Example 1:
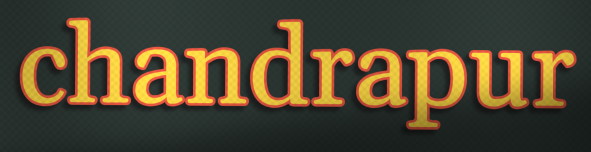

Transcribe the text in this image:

chandrapur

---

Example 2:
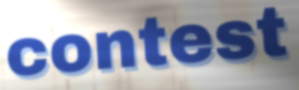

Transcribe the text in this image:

contest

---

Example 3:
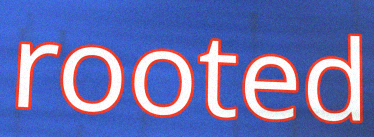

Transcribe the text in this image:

rooted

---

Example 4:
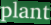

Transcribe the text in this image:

plant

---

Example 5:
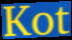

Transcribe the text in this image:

Kot